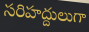
సరిహద్దులుగా